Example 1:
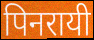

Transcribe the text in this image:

पिनरायी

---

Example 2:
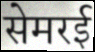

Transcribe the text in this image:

सेमरई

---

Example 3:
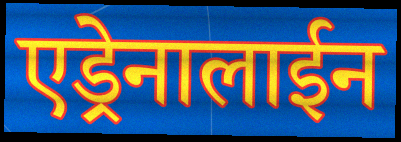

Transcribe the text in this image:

एड्रेनालाईन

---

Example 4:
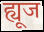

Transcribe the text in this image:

ह्यूज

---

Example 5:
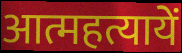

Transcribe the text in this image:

आत्महत्यायें